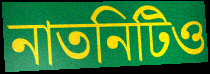
নাতনিটিও